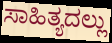
ಸಾಹಿತ್ಯದಲ್ಲು